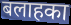
बलाहका